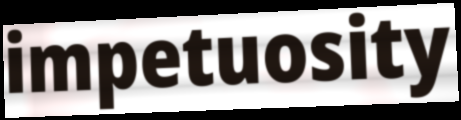
impetuosity